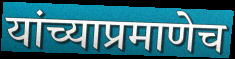
यांच्याप्रमाणेच